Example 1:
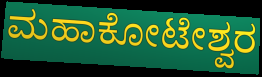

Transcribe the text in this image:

ಮಹಾಕೋಟೇಶ್ವರ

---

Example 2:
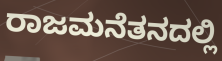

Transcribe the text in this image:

ರಾಜಮನೆತನದಲ್ಲಿ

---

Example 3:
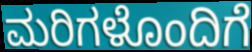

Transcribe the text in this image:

ಮರಿಗಳೊಂದಿಗೆ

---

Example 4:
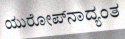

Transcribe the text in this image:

ಯುರೋಪ್‌ನಾದ್ಯಂತ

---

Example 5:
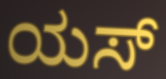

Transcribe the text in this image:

ಯಸ್